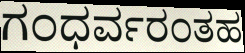
ಗಂಧರ್ವರಂತಹ